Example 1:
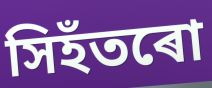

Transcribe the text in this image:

সিহঁতৰো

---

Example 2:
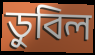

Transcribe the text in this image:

ডুবিল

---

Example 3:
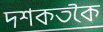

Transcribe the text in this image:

দশকতকৈ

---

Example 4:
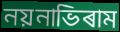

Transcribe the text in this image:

নয়নাভিৰাম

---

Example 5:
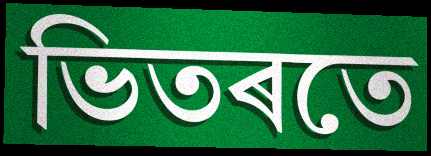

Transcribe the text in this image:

ভিতৰতে